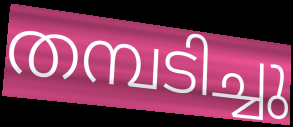
തമ്പടിച്ചു